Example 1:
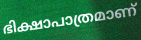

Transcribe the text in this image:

ഭിക്ഷാപാത്രമാണ്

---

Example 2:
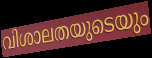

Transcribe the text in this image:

വിശാലതയുടെയും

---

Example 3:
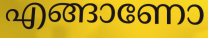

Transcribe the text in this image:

എങ്ങാണോ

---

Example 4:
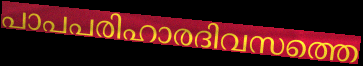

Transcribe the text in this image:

പാപപരിഹാരദിവസത്തെ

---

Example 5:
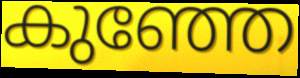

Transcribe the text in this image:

കുഞ്ഞേ